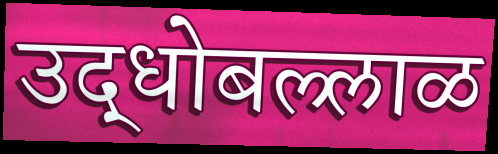
उद्धोबल्लाळ